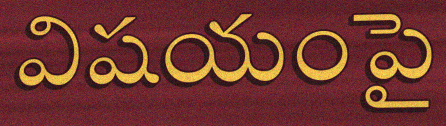
విషయంపై